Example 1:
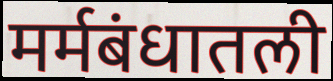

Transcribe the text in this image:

मर्मबंधातली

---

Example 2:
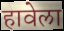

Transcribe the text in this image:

हावेला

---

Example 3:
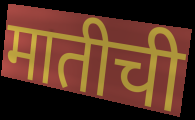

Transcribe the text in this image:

मातीची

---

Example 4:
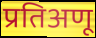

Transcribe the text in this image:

प्रतिअणू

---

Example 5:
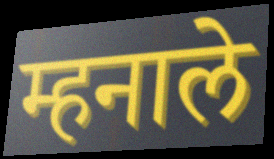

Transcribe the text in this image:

म्हनाले